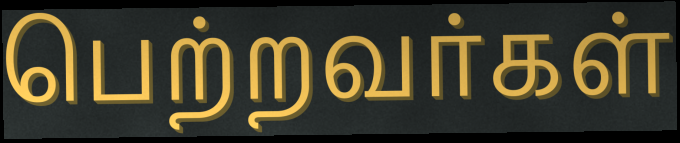
பெற்றவர்கள்